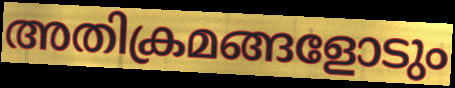
അതിക്രമങ്ങളോടും